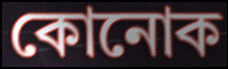
কোনোক